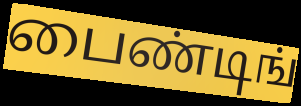
பைண்டிங்